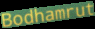
Bodhamrut